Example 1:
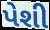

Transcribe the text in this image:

પેશી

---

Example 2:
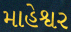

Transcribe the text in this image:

માહેશ્વર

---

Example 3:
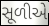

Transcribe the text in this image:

સૂળીએ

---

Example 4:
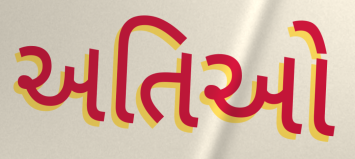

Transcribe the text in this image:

અતિઓ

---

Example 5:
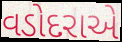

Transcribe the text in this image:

વડોદરાએ